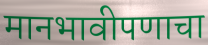
मानभावीपणाचा